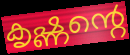
കൃഷ്ണന്റെ